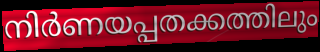
നിർണയപ്പതക്കത്തിലും